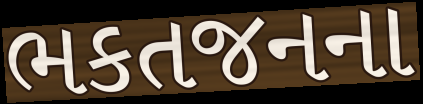
ભકતજનના